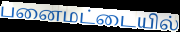
பனைமட்டையில்